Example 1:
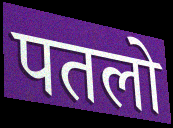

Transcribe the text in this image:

पतलो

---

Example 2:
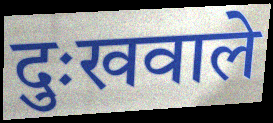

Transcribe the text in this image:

दुःखवाले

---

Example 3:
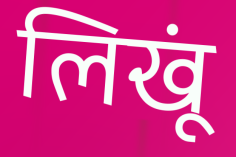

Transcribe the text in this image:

लिखूं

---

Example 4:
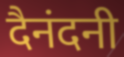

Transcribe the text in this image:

दैनंदनी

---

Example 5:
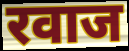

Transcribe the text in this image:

रवाज